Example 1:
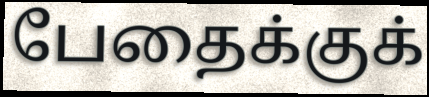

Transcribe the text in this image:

பேதைக்குக்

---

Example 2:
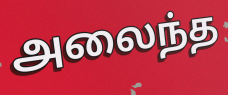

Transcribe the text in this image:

அலைந்த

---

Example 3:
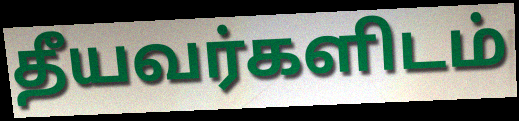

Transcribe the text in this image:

தீயவர்களிடம்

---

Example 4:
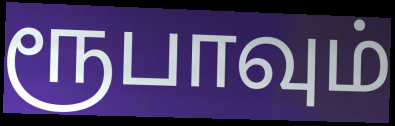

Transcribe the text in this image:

ரூபாவும்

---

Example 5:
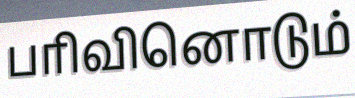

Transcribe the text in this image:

பரிவினொடும்